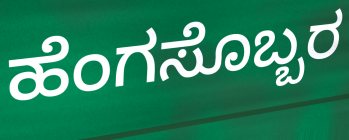
ಹೆಂಗಸೊಬ್ಬರ